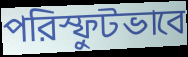
পরিস্ফুটভাবে